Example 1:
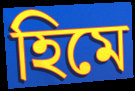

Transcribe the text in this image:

হিমে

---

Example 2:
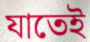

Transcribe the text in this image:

যাতেই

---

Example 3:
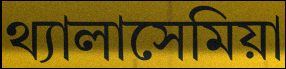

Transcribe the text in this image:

থ্যালাসেমিয়া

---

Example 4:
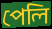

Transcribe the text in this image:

পেলি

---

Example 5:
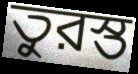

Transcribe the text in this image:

তুরস্ত